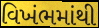
વિખંભમાંથી